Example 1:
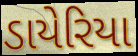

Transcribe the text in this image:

ડાયેરિયા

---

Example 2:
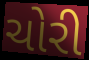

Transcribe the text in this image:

ચોરી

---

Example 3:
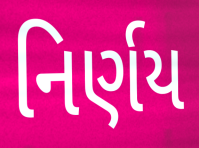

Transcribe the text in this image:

નિર્ણય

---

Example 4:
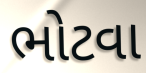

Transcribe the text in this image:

ભોટવા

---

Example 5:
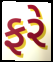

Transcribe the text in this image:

ફરે